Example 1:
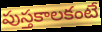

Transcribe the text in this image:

పుస్తకాలకంటే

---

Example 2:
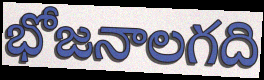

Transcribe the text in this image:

భోజనాలగది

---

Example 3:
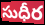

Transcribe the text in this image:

సుధీర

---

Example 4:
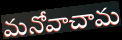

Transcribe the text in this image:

మనోవాచామ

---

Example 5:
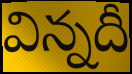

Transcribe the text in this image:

విన్నదీ